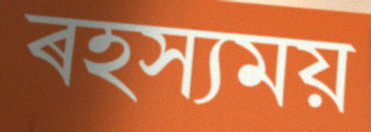
ৰহস্যময়